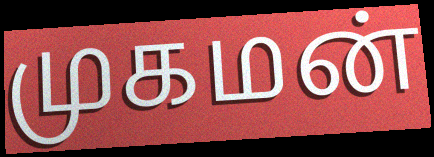
முகமன்